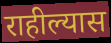
राहील्यास